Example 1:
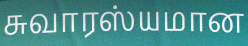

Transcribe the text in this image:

சுவாரஸ்யமான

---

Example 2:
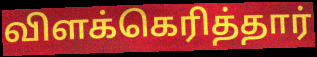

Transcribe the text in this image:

விளக்கெரித்தார்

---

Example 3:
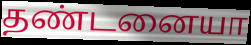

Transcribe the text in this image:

தண்டனையா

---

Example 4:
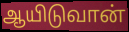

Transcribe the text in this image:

ஆயிடுவான்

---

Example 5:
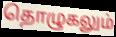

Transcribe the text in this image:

தொழுகலும்